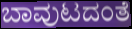
ಬಾವುಟದಂತೆ